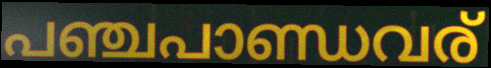
പഞ്ചപാണ്ഡവര്